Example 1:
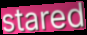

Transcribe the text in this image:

stared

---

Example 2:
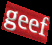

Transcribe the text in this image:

geef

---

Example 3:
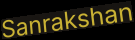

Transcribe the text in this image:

Sanrakshan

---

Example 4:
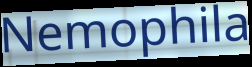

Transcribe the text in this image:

Nemophila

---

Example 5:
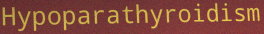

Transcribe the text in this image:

Hypoparathyroidism